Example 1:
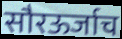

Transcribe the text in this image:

सौरऊर्जाच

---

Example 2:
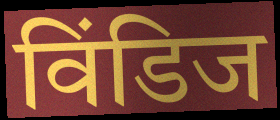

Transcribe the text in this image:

विंडिज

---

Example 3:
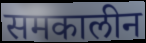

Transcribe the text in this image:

समकालीन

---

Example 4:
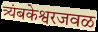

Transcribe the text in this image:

त्र्यंबकेश्वरजवळ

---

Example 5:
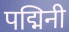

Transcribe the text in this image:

पद्मिनी